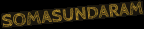
SOMASUNDARAM